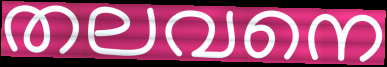
തലവനെ